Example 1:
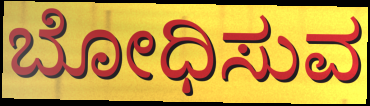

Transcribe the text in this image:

ಬೋಧಿಸುವ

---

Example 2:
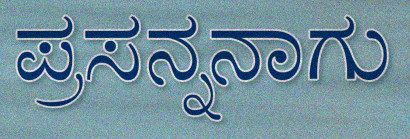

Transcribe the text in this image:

ಪ್ರಸನ್ನನಾಗು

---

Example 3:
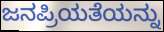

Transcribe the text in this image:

ಜನಪ್ರಿಯತೆಯನ್ನು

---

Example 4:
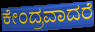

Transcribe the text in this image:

ಕೇಂದ್ರವಾದರೆ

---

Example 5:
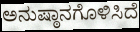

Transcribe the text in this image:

ಅನುಷ್ಠಾನಗೊಳಿಸಿದೆ